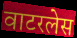
वाटरलेस